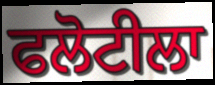
ਫਲੋਟੀਲਾ